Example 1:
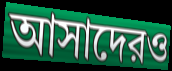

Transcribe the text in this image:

আসাদেরও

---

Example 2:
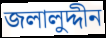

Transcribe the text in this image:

জলালুদ্দীন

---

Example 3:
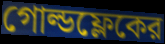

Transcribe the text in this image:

গোল্ডফ্লেকের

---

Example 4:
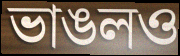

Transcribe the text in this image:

ভাঙলও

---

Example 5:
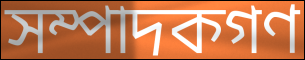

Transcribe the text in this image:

সম্পাদকগণ